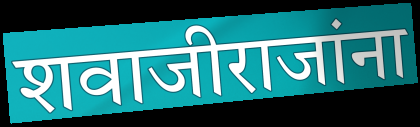
शवाजीराजांना